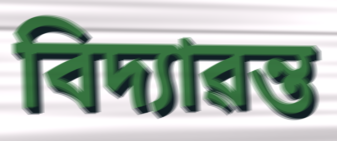
বিদ্যাৱন্ত